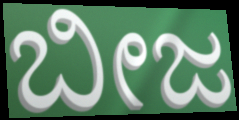
ಬೀಜ